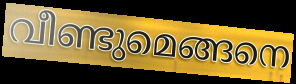
വീണ്ടുമെങ്ങനെ